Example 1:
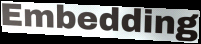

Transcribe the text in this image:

Embedding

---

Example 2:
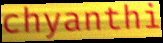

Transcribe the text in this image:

chyanthi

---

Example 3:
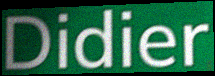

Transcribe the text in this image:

Didier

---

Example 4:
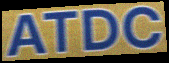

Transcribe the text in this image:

ATDC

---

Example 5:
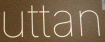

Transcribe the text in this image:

uttan